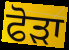
ਫੋੜਾ